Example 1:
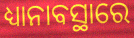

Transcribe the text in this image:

ଧ୍ୟାନାବସ୍ଥାରେ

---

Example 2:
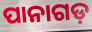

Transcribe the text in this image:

ପାନାଗଡ଼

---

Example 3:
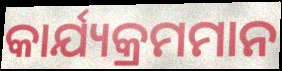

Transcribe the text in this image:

କାର୍ଯ୍ୟକ୍ରମମାନ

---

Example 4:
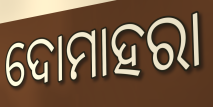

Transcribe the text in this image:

ଦୋମାହରା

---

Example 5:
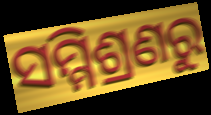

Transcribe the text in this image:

ସମ୍ମିଶ୍ରଣରୁ